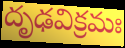
దృఢవిక్రమః